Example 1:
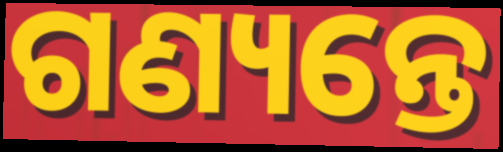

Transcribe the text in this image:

ଗଣ୍ୟନ୍ତେ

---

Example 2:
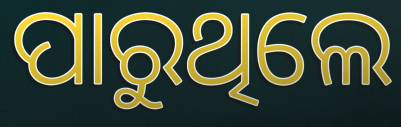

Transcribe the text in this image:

ପାରୁଥିଲେ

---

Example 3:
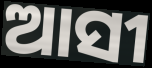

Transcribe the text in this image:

ଆସୀ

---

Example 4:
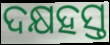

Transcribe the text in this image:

ଦକ୍ଷହସ୍ତ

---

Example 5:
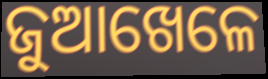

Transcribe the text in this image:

ଜୁଆଖେଳେ